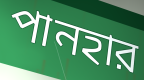
পানহার